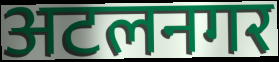
अटलनगर